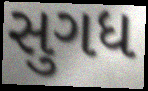
સુગધ